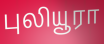
புலியூரா